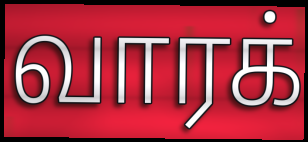
வாரக்